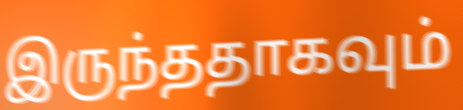
இருந்ததாகவும்